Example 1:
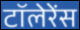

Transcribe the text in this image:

टॉलेरेंस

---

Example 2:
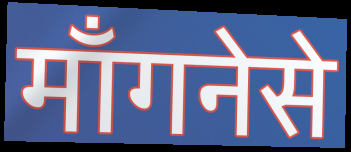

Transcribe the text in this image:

माँगनेसे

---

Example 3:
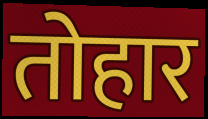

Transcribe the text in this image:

तोहार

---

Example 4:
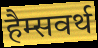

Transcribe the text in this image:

हैम्सवर्थ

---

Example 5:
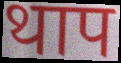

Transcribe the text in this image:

थाप